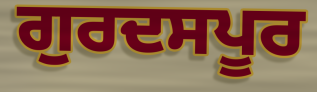
ਗੁਰਦਸਪੂਰ